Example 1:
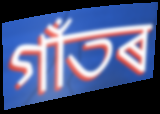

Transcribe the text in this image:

গাঁতৰ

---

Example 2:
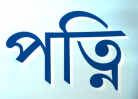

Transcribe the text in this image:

পত্নি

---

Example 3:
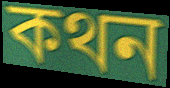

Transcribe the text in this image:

কথন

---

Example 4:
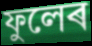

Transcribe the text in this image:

ফুলেৰ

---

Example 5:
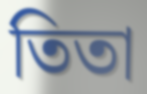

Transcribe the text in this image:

তিতা